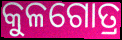
କୁଳଗୋତ୍ର